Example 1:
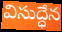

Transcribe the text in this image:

విసుద్ధేన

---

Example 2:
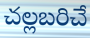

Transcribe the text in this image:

చల్లబరిచే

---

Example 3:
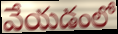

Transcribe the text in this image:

వేయడంలో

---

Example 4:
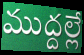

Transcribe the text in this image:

ముద్దల్లే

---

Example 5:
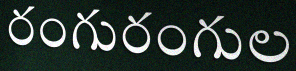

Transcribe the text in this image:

రంగురంగుల